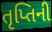
તૃપ્તિની